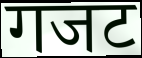
गजट